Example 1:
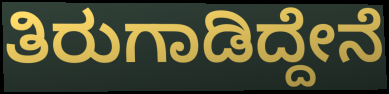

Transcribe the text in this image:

ತಿರುಗಾಡಿದ್ದೇನೆ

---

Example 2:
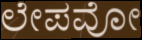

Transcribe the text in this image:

ಲೇಪವೋ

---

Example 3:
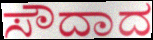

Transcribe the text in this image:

ಸೌದಾದ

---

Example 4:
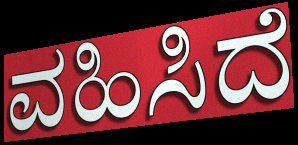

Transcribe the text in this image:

ವಹಿಸಿದೆ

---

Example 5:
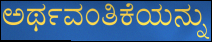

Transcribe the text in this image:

ಅರ್ಥವಂತಿಕೆಯನ್ನು